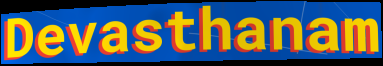
Devasthanam